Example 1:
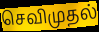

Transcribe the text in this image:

செவிமுதல்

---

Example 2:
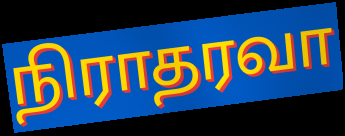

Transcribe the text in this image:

நிராதரவா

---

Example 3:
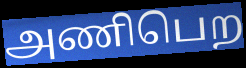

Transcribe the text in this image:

அணிபெற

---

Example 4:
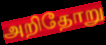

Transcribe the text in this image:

அறிதோறு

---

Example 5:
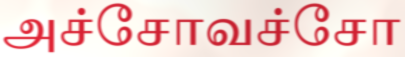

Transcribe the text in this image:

அச்சோவச்சோ